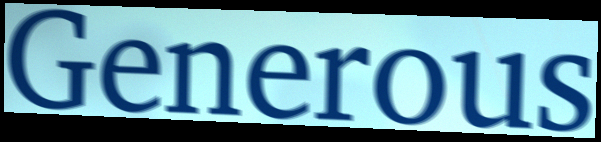
Generous